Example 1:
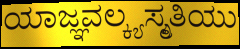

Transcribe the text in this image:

ಯಾಜ್ಞವಲ್ಕ್ಯಸ್ಮೃತಿಯು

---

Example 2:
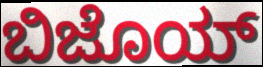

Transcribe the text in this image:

ಬಿಜೊಯ್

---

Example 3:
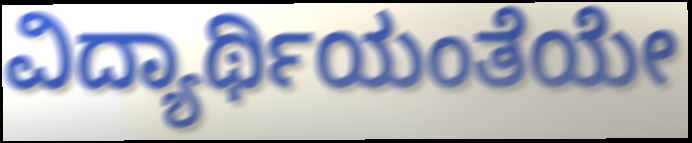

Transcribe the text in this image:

ವಿದ್ಯಾರ್ಥಿಯಂತೆಯೇ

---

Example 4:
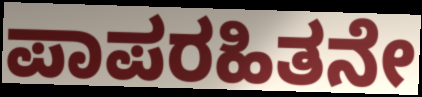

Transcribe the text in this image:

ಪಾಪರಹಿತನೇ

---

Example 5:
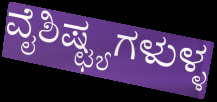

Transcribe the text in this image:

ವೈಶಿಷ್ಟ್ಯಗಳುಳ್ಳ